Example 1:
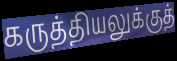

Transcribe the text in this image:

கருத்தியலுக்குத்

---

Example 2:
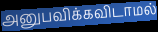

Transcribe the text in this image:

அனுபவிக்கவிடாமல்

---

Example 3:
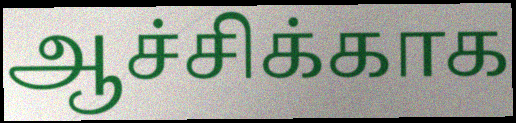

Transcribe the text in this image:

ஆச்சிக்காக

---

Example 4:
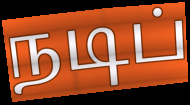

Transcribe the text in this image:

நடிப்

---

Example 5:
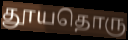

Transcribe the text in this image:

தூயதொரு